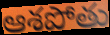
ఆశపోతు